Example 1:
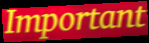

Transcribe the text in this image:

Important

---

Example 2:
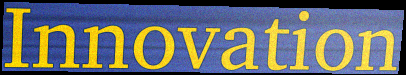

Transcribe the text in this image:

Innovation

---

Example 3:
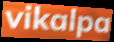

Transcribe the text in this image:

vikalpa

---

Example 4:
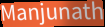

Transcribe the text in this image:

Manjunath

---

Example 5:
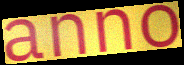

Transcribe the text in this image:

anno